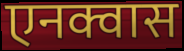
एनक्वास